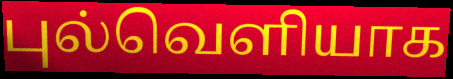
புல்வெளியாக